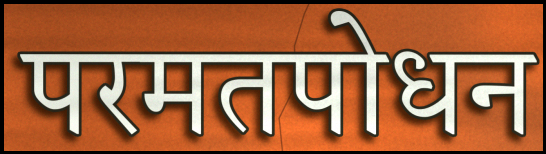
परमतपोधन